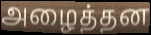
அழைத்தன